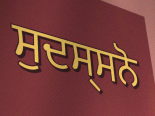
ਸੁਦਸ੍ਸਨੋ